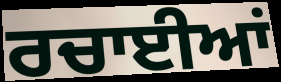
ਰਚਾਈਆਂ